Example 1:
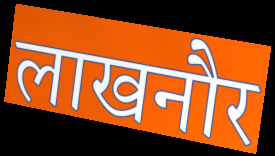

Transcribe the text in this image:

लाखनौर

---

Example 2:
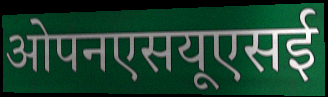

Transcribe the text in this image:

ओपनएसयूएसई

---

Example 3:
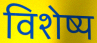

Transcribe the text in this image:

विशेष्य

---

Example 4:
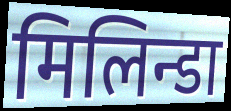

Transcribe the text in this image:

मिलिन्डा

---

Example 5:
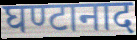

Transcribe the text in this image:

घण्टानाद